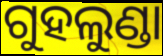
ଗୁହଲୁଣ୍ଡା